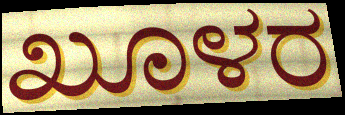
ಖೂಳರ